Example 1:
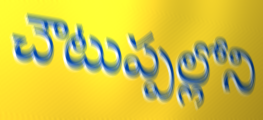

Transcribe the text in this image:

చౌటుప్పల్లోని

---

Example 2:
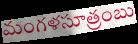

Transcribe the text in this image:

మంగళసూత్రంబు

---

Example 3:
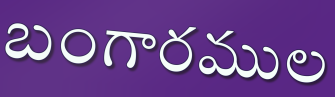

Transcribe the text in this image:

బంగారముల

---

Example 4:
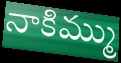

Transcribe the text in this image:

నాకిమ్ము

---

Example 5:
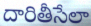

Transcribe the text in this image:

దారితీసేలా